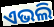
ଏଭଲି